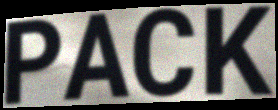
PACK